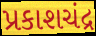
પ્રકાશચંદ્ર